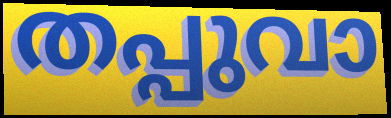
തപ്പുവാ